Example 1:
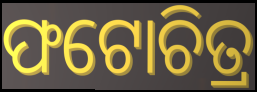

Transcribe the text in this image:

ଫଟୋଚିତ୍ର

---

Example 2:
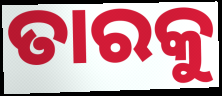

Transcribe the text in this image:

ତାରକୁ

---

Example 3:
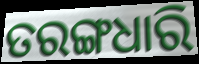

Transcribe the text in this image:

ତରଙ୍ଗଧାରି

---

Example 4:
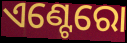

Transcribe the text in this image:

ଏଣ୍ଟେରୋ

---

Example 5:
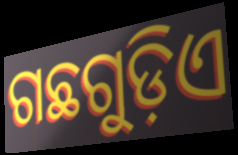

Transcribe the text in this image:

ଗଛଗୁଡ଼ିଏ